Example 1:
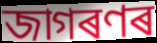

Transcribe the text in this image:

জাগৰণৰ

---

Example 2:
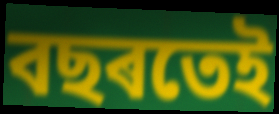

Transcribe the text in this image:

বছৰতেই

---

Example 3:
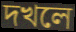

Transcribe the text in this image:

দখলে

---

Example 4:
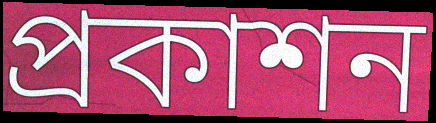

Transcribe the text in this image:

প্ৰকাশন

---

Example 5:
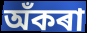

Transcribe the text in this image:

অঁকৰা